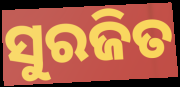
ସୁରଜିତ